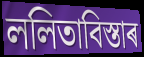
ললিতাবিস্তাৰ